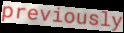
previously